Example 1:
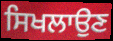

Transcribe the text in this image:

ਸਿਖਲਾਉਣ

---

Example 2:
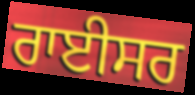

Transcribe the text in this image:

ਰਾਈਸਰ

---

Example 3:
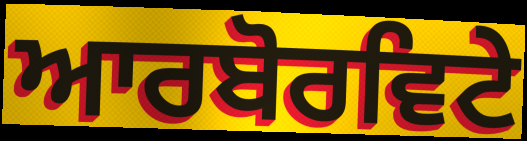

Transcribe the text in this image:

ਆਰਬੋਰਵਿਟੇ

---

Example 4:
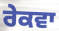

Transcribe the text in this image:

ਰੇਕਵਾ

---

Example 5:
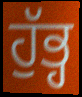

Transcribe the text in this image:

ਹੁੱਭ੍ਹ